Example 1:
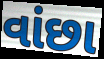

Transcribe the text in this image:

વાંછા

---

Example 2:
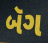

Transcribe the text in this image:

બૅગ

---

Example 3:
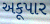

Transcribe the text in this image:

અકૂપાર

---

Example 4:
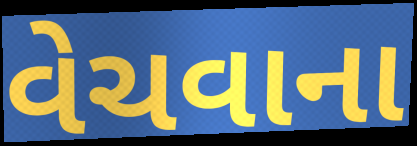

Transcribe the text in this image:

વેચવાના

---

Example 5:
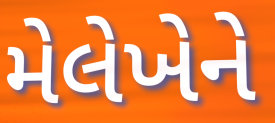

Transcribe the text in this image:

મેલેખેને